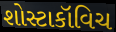
શોસ્ટાકૉવિચ